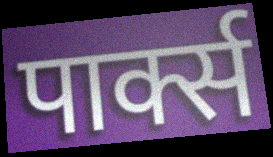
पार्क्स